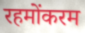
रहमोंकरम